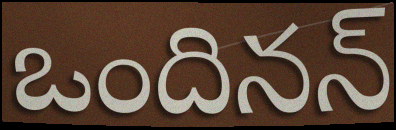
ఒందినన్